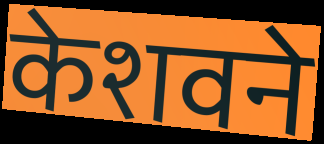
केशवने